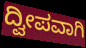
ದ್ವೀಪವಾಗಿ